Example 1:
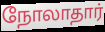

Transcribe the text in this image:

நோலாதார்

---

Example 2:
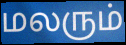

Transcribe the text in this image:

மலரும்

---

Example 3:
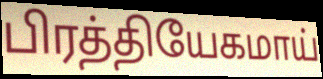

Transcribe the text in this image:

பிரத்தியேகமாய்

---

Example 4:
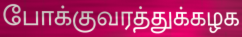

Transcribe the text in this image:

போக்குவரத்துக்கழக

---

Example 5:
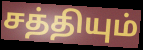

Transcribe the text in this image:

சத்தியும்